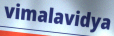
vimalavidya